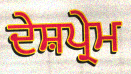
ਦੇਸ਼ਪ੍ਰੇਮ